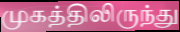
முகத்திலிருந்து